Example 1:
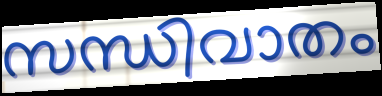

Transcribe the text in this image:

സന്ധിവാതം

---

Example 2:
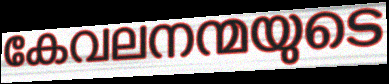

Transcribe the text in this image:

കേവലനന്മയുടെ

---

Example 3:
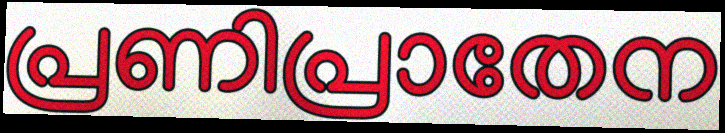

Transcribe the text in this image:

പ്രണിപ്രാതേന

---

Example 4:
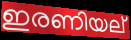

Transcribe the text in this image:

ഇരണിയല്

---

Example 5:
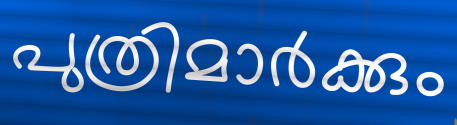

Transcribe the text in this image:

പുത്രിമാർക്കും